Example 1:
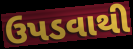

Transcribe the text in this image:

ઉપડવાથી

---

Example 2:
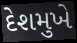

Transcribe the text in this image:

દેશમુખે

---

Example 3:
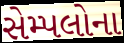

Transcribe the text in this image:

સેમ્પલોના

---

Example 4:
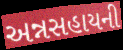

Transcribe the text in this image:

અન્નસહાયની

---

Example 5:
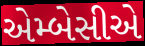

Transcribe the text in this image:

એમ્બેસીએ